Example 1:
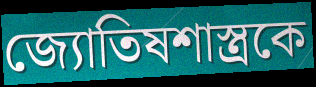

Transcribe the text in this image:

জ্যোতিষশাস্ত্রকে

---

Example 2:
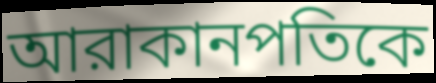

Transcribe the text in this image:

আরাকানপতিকে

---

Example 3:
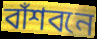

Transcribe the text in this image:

বাঁশবনে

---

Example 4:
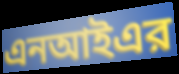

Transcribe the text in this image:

এনআইএর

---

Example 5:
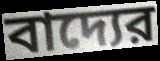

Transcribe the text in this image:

বাদ্যের